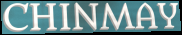
CHINMAY